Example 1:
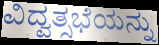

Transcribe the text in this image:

ವಿದ್ವತ್ಸಭೆಯನ್ನು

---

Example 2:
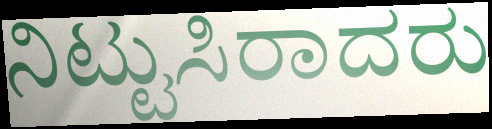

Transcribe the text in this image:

ನಿಟ್ಟುಸಿರಾದರು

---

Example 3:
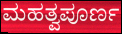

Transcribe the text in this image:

ಮಹತ್ವಪೂರ್ಣ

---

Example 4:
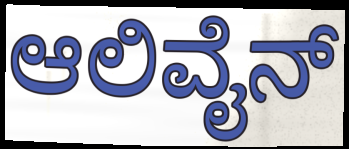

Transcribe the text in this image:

ಆಲಿವೈನ್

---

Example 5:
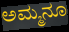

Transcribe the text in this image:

ಅಮ್ಮನೂ